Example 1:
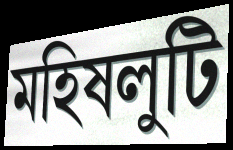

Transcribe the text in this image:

মহিষলুটি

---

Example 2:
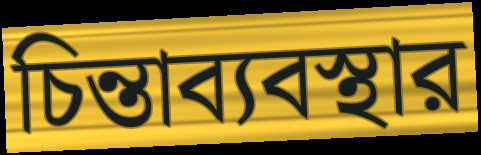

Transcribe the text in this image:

চিন্তাব্যবস্থার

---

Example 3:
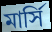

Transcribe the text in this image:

মার্সি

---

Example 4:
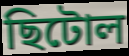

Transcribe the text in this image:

ছিটোল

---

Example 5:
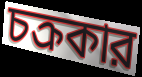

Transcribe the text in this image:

চক্রকার